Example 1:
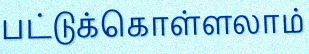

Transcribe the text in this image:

பட்டுக்கொள்ளலாம்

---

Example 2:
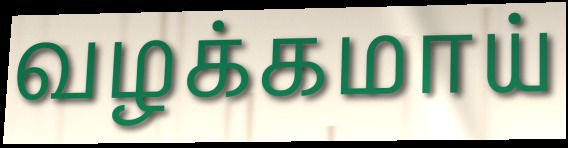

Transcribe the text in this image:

வழக்கமாய்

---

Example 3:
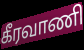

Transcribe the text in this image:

கீரவாணி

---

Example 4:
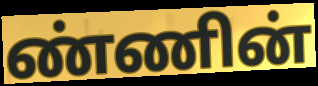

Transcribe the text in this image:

ண்ணின்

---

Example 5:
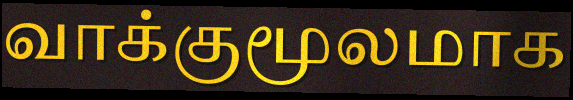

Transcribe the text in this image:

வாக்குமூலமாக